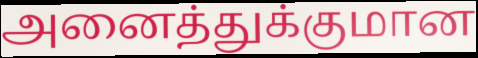
அனைத்துக்குமான